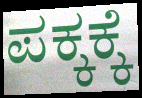
ಪಕ್ಕಕ್ಕೆ